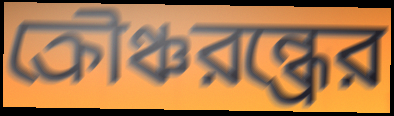
ক্রৌঞ্চরন্ধ্রের